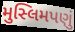
મુસ્લિમપણું